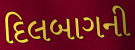
દિલબાગની